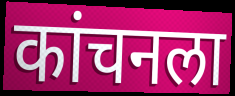
कांचनला